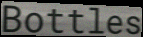
Bottles